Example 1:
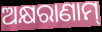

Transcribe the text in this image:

ଅକ୍ଷରାଣାମ୍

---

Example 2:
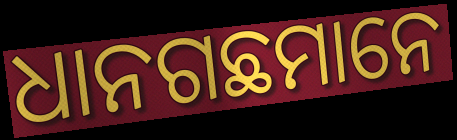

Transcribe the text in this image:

ଧାନଗଛମାନେ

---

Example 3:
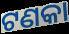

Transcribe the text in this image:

ଟଣକା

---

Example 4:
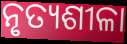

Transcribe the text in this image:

ନୃତ୍ୟଶୀଳା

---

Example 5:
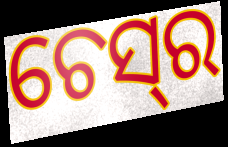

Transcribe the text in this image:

ଚେସ୍‌ର